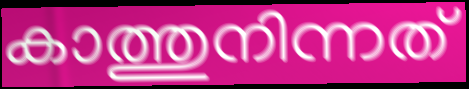
കാത്തുനിന്നത്